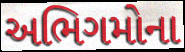
અભિગમોના